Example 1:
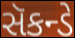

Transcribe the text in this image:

સૅકન્ડે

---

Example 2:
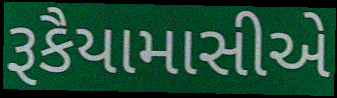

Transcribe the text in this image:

રૂકૈયામાસીએ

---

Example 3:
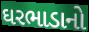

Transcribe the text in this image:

ઘરભાડાનો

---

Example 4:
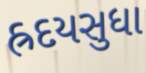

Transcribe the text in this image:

હ્રદયસુધા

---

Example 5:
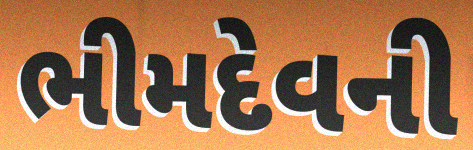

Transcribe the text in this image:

ભીમદેવની